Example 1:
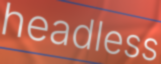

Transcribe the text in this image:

headless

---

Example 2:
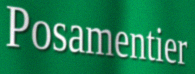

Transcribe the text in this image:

Posamentier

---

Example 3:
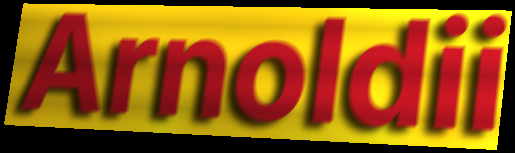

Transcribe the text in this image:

Arnoldii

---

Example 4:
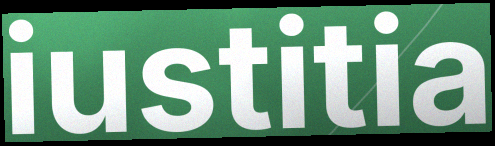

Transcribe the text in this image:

iustitia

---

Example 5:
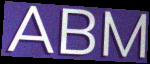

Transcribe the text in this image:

ABM